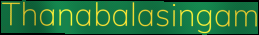
Thanabalasingam